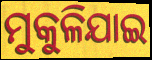
ମୁକୁଳିଯାଇ